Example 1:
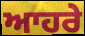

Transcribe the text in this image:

ਆਹਰੇ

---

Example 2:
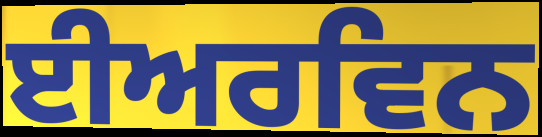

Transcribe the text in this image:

ਈਅਰਵਿਨ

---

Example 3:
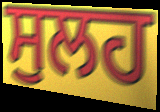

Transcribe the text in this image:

ਸੁਲਹ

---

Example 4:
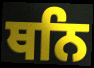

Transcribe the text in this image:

ਥਨਿ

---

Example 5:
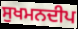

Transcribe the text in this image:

ਸੁਖਮਨਦੀਪ